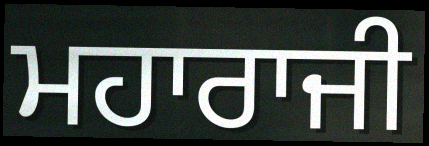
ਮਹਾਰਾਜੀ